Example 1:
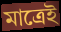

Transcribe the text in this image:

মাত্রেই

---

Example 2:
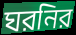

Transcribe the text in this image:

ঘরনির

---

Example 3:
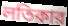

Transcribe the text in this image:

লতিকার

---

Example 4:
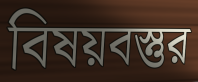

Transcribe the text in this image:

বিষয়বস্তুর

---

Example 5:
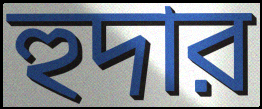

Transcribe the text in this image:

হুদার